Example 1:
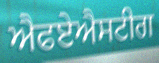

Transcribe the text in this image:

ਐਫਏਐਸਟੀਗ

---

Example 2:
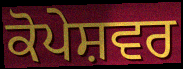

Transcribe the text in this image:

ਕੋਪੇਸ਼ਵਰ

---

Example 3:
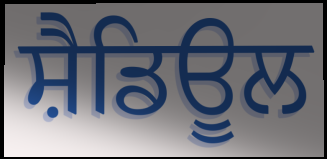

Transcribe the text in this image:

ਸ਼ੈਡਿਊਲ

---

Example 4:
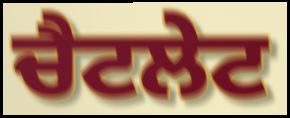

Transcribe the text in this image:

ਚੈਟਲੇਟ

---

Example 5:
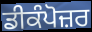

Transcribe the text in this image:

ਡੀਕੰਪੋਜ਼ਰ